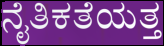
ನೈತಿಕತೆಯತ್ತ